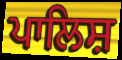
ਪਾਲਿਸ਼